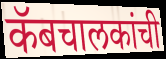
कॅबचालकांची